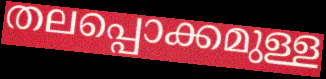
തലപ്പൊക്കമുള്ള